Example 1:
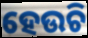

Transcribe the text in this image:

ହେଉଚି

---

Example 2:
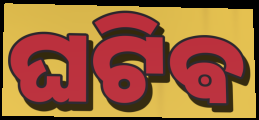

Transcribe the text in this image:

ଘଟିଵ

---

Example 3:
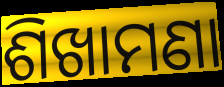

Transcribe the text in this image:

ଶିଖାମଣା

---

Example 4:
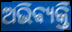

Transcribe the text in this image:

ଅଭିଵ୍ୟକ୍ତି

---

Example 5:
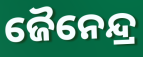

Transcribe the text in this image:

ଜୈନେନ୍ଦ୍ର